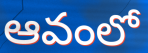
ఆవంలో